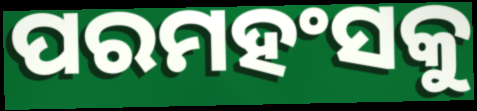
ପରମହଂସକୁ